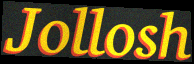
Jollosh